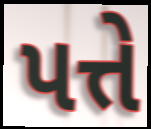
પત્તે